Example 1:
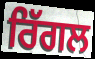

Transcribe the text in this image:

ਰਿੱਗਲ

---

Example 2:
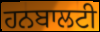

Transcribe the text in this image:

ਹਨਬਾਲਟੀ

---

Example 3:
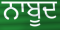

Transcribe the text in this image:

ਨਾਬੂਦ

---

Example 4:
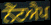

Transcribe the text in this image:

ਨੈੱਟਐਪ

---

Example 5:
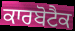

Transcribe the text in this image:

ਕਾਰਬੋਟੈਕ